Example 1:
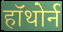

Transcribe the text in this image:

हॉथोर्न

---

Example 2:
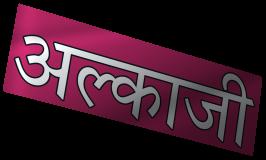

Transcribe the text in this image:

अल्काजी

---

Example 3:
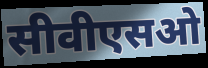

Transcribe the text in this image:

सीवीएसओ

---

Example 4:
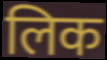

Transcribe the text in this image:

लिक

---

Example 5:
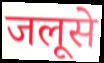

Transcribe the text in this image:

जलूसे